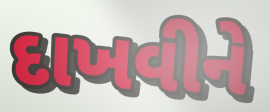
દાખવીને